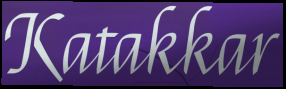
Katakkar